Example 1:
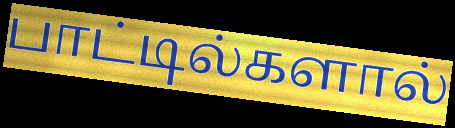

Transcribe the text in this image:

பாட்டில்களால்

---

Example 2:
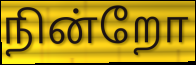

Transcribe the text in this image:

நின்றோ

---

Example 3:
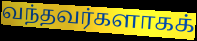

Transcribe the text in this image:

வந்தவர்களாகக்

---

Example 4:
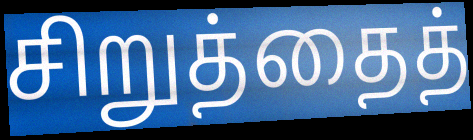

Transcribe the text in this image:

சிறுத்தைத்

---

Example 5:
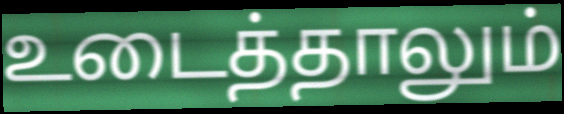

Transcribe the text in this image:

உடைத்தாலும்